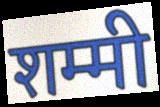
शम्मी